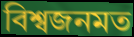
বিশ্বজনমত